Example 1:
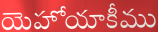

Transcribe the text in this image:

యెహోయాకీము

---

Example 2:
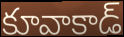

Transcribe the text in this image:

కూవాకాడ్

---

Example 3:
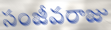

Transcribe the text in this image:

సంజీవరాజు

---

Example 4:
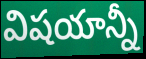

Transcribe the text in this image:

విషయాన్నీ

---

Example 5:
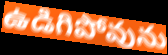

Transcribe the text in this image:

ఉడిగిపోవును